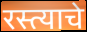
रस्त्याचे